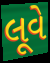
લૂવે